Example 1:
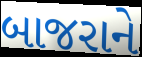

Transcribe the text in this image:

બાજરાને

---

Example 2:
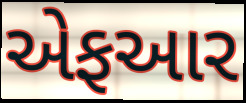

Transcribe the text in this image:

એફઆર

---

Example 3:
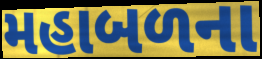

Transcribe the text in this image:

મહાબળના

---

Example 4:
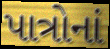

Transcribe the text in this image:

પાત્રોનાં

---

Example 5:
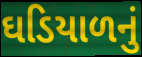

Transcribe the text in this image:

ઘડિયાળનું